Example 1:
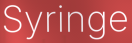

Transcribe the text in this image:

Syringe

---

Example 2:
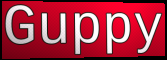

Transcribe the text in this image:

Guppy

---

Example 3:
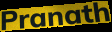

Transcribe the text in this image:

Pranath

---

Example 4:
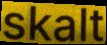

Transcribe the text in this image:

skalt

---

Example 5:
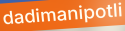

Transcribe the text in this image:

dadimanipotli